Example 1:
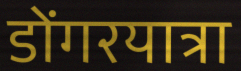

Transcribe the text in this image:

डोंगरयात्रा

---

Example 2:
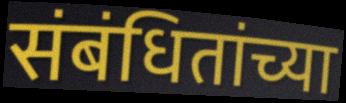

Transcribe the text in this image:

संबंधितांच्या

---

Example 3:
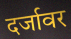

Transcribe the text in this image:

दर्जावर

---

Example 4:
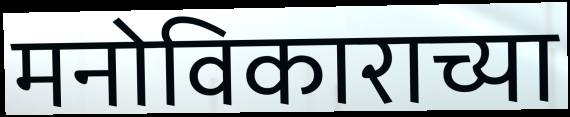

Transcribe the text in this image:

मनोविकाराच्या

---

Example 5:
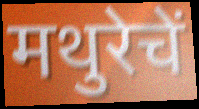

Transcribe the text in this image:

मथुरेचें